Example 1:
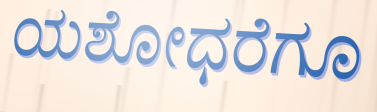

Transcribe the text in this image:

ಯಶೋಧರೆಗೂ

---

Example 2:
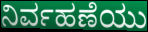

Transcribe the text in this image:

ನಿರ್ವಹಣೆಯು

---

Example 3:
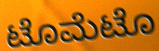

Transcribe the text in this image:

ಟೊಮೆಟೊ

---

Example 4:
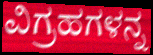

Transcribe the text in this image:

ವಿಗ್ರಹಗಳನ್ನ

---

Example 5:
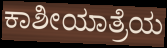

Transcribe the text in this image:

ಕಾಶೀಯಾತ್ರೆಯ